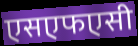
एसएफएसी